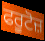
ਫਰੂਟੋਜ਼